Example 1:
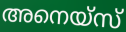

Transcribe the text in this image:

അനെയ്സ്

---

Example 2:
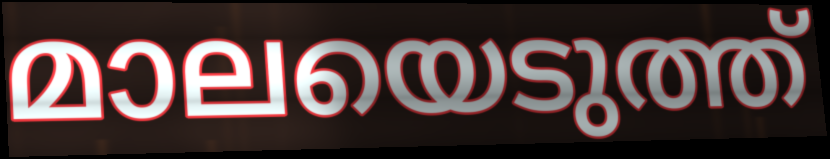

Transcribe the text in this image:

മാലയെടുത്ത്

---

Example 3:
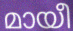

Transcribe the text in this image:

മായീ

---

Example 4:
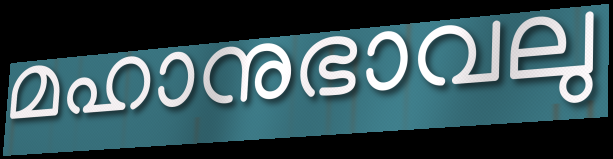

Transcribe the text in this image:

മഹാനുഭാവലു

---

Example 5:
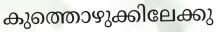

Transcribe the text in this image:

കുത്തൊഴുക്കിലേക്കു